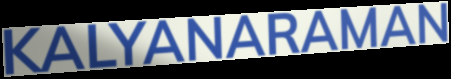
KALYANARAMAN